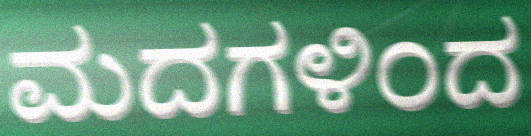
ಮದಗಳಿಂದ